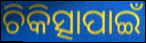
ଚିକିତ୍ସାପାଇଁ